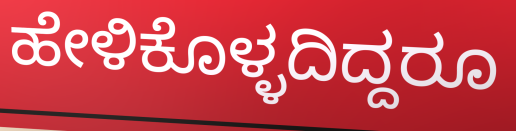
ಹೇಳಿಕೊಳ್ಳದಿದ್ದರೂ